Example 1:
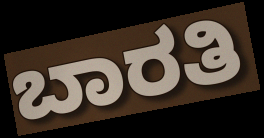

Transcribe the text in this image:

ಬಾರತಿ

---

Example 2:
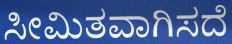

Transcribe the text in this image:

ಸೀಮಿತವಾಗಿಸದೆ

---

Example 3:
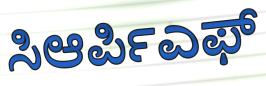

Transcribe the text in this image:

ಸಿಆರ್ಪಿಎಫ್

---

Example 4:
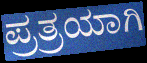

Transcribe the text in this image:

ಪ್ರತ್ರಯಾಗಿ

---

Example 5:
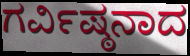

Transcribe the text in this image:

ಗರ್ವಿಷ್ಠನಾದ